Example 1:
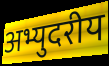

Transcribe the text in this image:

अभ्युदरीय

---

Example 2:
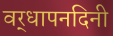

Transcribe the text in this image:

वर्धापनदिनी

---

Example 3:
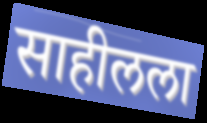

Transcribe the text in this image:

साहीलला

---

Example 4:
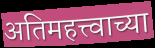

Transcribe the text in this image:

अतिमहत्त्वाच्या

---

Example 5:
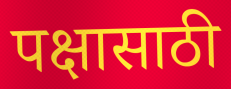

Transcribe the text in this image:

पक्षासाठी